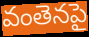
వంతెనపై